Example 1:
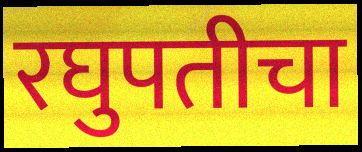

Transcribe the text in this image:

रघुपतीचा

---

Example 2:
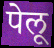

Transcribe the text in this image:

पेलू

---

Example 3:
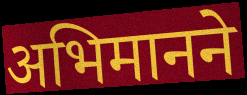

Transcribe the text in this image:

अभिमानने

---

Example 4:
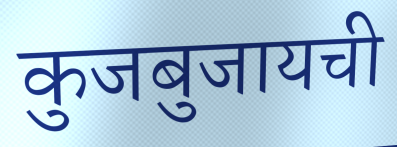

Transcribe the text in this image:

कुजबुजायची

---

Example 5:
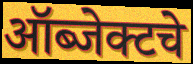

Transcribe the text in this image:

ऑब्जेक्टचे